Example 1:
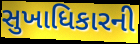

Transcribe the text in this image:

સુખાધિકારની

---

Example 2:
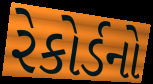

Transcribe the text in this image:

રેકોર્ડનો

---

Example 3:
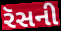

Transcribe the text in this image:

રૅસની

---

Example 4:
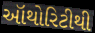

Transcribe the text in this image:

ઑથોરિટીથી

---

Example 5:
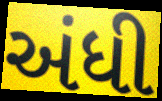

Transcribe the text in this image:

અંધી